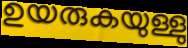
ഉയരുകയുള്ളു